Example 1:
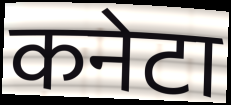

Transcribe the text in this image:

कनेटा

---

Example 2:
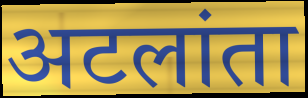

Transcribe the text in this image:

अटलांता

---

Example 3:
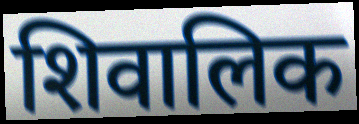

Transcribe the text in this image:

शिवालिक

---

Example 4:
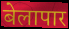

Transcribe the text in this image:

बेलापार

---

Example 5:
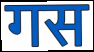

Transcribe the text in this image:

गस